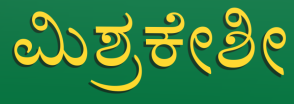
ಮಿಶ್ರಕೇಶೀ